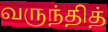
வருந்தித்